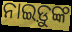
ନାଇଡ଼ୁଙ୍କ